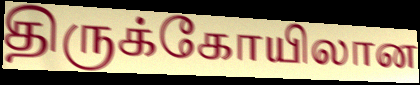
திருக்கோயிலான